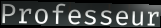
Professeur